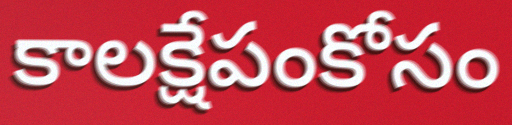
కాలక్షేపంకోసం